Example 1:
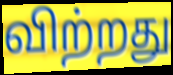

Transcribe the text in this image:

விற்றது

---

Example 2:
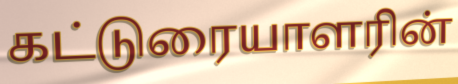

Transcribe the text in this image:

கட்டுரையாளரின்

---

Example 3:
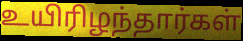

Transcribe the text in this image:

உயிரிழந்தார்கள்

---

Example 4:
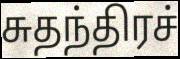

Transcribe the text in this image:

சுதந்திரச்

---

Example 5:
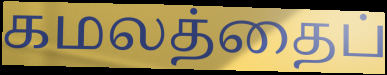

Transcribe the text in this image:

கமலத்தைப்